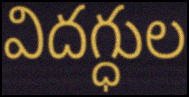
విదగ్ధుల